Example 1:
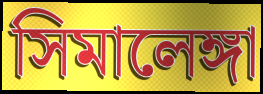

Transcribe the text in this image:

সিমালেঙ্গা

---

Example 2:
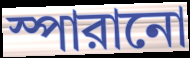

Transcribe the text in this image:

স্পারানো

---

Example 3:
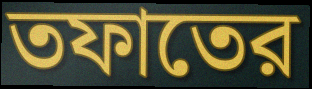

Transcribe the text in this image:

তফাতের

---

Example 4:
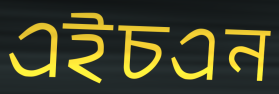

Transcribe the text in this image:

এইচএন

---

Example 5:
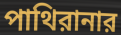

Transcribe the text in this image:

পাথিরানার